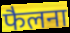
फैलना